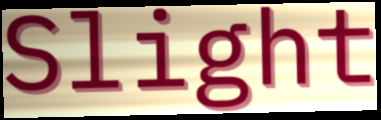
Slight